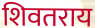
शिवतराय